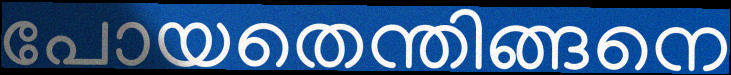
പോയതെന്തിങ്ങനെ